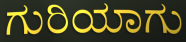
ಗುರಿಯಾಗು